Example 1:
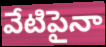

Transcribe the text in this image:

వేటిపైనా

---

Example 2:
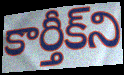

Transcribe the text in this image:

కార్తీక్‌ని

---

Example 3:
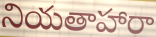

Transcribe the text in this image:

నియతాహారా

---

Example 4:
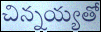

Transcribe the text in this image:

చిన్నయ్యతో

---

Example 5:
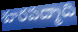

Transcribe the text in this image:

శూరపద్మాది